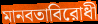
মানবতাবিরোধী